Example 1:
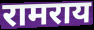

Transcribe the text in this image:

रामराय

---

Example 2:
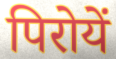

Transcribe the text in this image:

पिरोयें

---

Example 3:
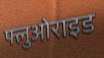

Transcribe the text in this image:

फ्लुओराइड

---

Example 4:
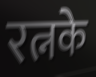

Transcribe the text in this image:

रत्नके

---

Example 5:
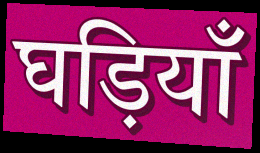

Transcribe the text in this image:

घड़ियाँ